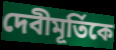
দেবীমূর্তিকে